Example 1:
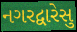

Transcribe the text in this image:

નગરદ્વારેસુ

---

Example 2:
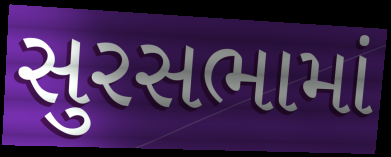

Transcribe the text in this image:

સુરસભામાં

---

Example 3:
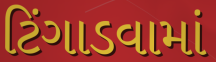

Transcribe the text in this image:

ટિંગાડવામાં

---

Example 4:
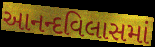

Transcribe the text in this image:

આનન્દવિલાસમાં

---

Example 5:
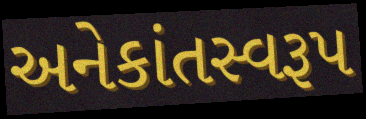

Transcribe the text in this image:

અનેકાંતસ્વરૂપ